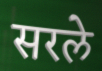
सरले